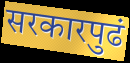
सरकारपुढं